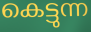
കെട്ടുന്ന